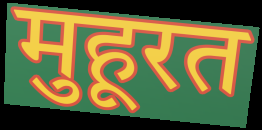
मुहूरत